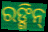
ରଙ୍ଗିନ୍